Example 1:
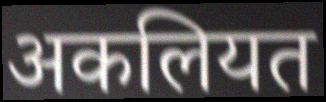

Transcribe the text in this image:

अकलियत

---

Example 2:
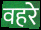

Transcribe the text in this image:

वहरे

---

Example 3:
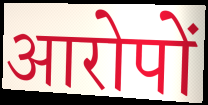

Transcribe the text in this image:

आरोपों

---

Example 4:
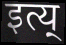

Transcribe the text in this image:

इत्य्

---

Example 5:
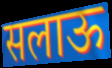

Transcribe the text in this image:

सलाऊ